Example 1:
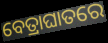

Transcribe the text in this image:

ବେତ୍ରାଘାତରେ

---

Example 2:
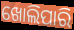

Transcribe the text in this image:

ଖୋଲିପାରି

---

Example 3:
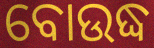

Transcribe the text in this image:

ବୋଉଦ୍ଧ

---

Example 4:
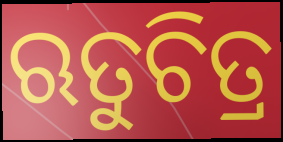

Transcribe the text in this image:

ଋତୁଚିତ୍ର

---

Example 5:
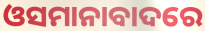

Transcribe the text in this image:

ଓସମାନାବାଦରେ